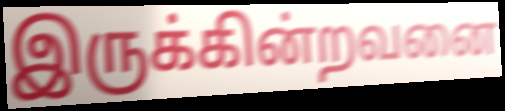
இருக்கின்றவனை